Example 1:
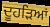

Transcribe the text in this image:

ਦੂਹੜਿਆਂ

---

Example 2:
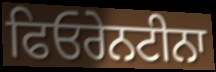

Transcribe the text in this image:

ਫਿਓਰੇਨਟੀਨਾ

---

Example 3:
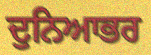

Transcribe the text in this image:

ਦੁਨਿਆਭਰ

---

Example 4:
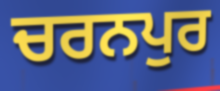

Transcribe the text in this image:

ਚਰਨਪੁਰ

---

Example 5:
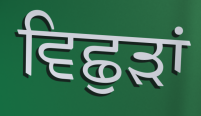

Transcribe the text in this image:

ਵਿਛੁੜਾਂ